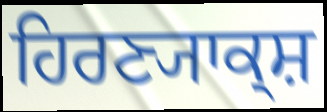
ਹਿਰਣ੍ਯਾਕ੍ਸ਼